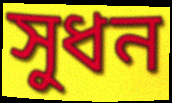
সুধন